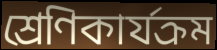
শ্রেণিকার্যক্রম